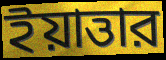
ইয়াত্তার